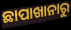
ଛାପାଖାନାରୁ